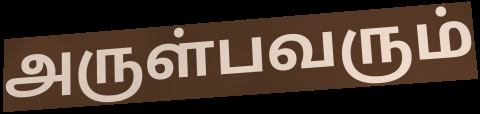
அருள்பவரும்